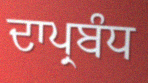
ਦਾਪ੍ਰਬੰਧ